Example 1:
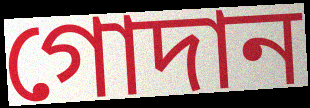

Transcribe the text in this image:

গোদান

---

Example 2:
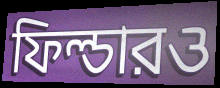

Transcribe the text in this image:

ফিল্ডারও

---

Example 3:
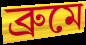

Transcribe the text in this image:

ব্রুমে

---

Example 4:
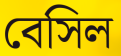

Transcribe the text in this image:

বেসিল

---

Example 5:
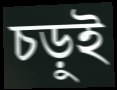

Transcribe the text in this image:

চড়ুই